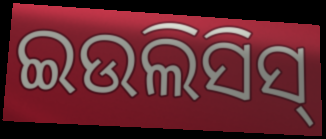
ଇଉଲିସିସ୍